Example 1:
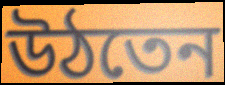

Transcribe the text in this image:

উঠতেন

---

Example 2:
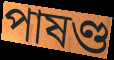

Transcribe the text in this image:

পাষণ্ড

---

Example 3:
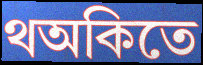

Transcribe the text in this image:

থঅকিতে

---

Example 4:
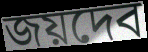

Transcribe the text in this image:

জয়দেব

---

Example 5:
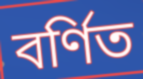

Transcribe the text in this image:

বর্ণিত